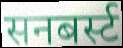
सनबर्स्ट